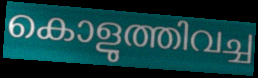
കൊളുത്തിവച്ച